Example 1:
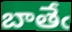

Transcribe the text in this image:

బాతేఁ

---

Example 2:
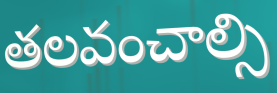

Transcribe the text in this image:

తలవంచాల్సి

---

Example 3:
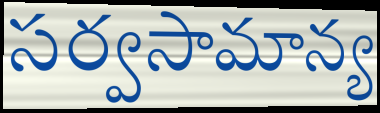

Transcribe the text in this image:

సర్వసామాన్య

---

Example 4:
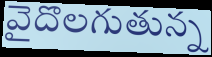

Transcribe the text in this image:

వైదొలగుతున్న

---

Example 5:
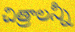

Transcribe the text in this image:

చిత్రాలన్నీ